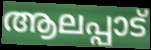
ആലപ്പാട്